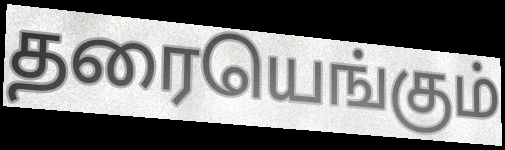
தரையெங்கும்